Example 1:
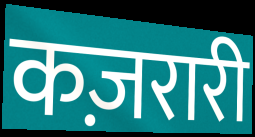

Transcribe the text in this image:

कज़रारी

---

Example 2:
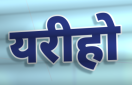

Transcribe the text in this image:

यरीहो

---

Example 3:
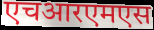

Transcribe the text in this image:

एचआरएमएस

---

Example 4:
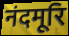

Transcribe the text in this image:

नंदमूरि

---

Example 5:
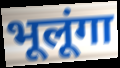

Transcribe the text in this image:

भूलूंगा